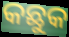
କଛୁକ